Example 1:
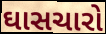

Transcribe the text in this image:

ઘાસચારો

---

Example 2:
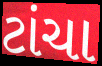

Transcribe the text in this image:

ટાંચા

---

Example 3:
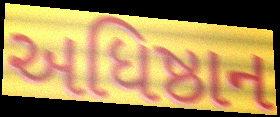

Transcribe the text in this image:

અધિષ્ઠાન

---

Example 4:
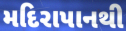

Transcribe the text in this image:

મદિરાપાનથી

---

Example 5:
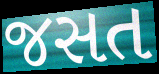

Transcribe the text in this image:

જસત